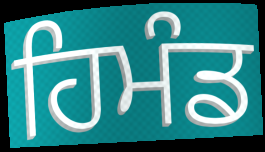
ਹਿਮੰਡ